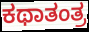
ಕಥಾತಂತ್ರ